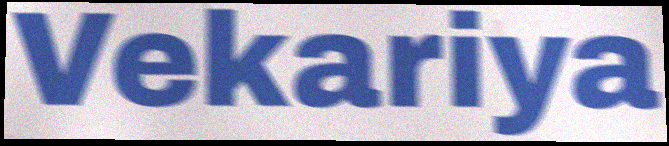
Vekariya